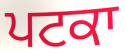
ਪਟਕਾ